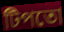
টিপতো